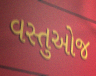
વસ્તુઓજ